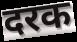
दरक